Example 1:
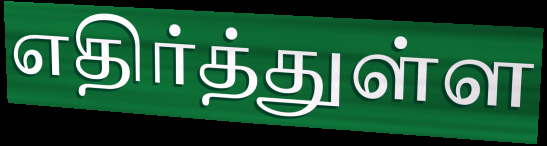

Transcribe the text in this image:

எதிர்த்துள்ள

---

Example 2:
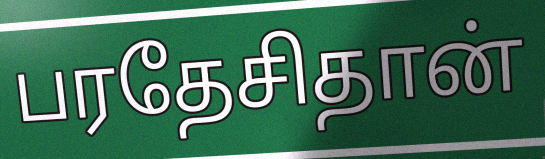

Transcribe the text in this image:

பரதேசிதான்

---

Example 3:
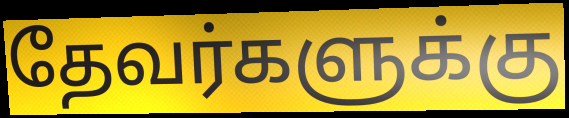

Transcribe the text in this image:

தேவர்களுக்கு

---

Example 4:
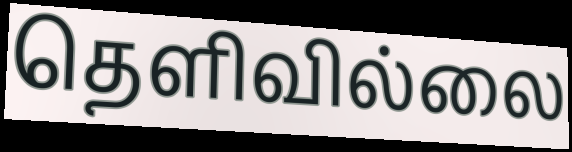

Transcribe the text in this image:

தெளிவில்லை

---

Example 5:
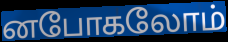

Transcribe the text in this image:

னபோகலோம்